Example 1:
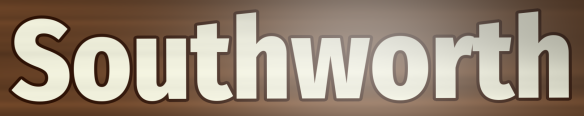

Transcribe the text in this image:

Southworth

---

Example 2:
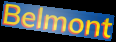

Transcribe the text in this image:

Belmont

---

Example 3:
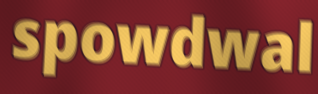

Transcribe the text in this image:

spowdwal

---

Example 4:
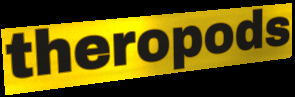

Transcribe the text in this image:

theropods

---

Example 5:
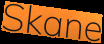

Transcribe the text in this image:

Skane